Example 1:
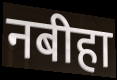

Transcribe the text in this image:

नबीहा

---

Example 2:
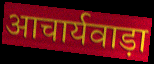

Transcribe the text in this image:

आचार्यवाड़ा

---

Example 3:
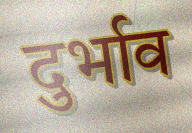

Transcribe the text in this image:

दुर्भाव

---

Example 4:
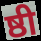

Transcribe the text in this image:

ष्ठी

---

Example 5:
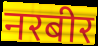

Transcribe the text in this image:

नरबीर